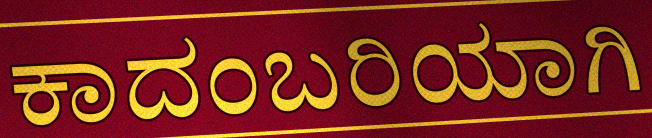
ಕಾದಂಬರಿಯಾಗಿ